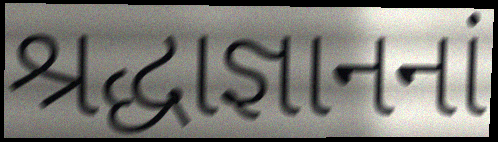
શ્રદ્ધાજ્ઞાનનાં